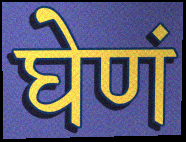
घेणं